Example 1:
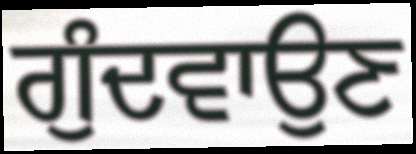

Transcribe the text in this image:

ਗੁੰਦਵਾਉਣ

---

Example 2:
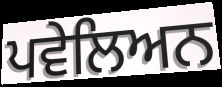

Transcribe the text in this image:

ਪਵੇਲਿਅਨ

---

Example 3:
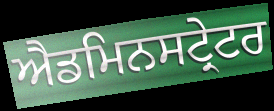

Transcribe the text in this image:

ਐਡਮਿਨਸਟ੍ਰੇਟਰ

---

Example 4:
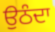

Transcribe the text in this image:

ਉਠੰਦਾ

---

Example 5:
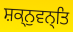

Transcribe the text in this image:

ਸ਼ਕ੍ਨੁਵਨ੍ਤਿ